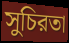
সুচিরতা